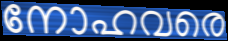
നോഹവരെ